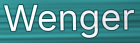
Wenger